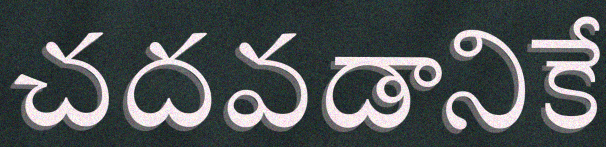
చదవడానికే